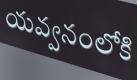
యవ్వనంలోకి